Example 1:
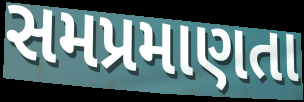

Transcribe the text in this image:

સમપ્રમાણતા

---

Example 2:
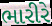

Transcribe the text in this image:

ભારીરે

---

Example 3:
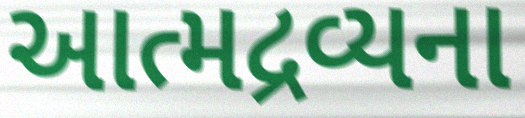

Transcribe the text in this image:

આત્મદ્રવ્યના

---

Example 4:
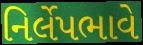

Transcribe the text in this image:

નિર્લેપભાવે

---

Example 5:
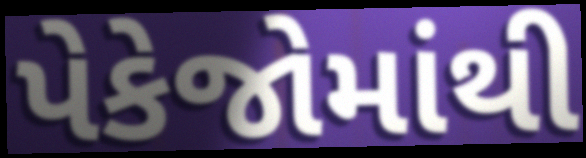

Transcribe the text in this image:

પેકેજોમાંથી